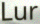
Lur